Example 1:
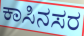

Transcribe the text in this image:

ಕಾಸಿನಸರ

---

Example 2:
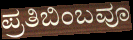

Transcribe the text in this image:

ಪ್ರತಿಬಿಂಬವೂ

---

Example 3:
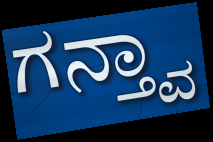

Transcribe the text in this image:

ಗನ್ತ್ವಾ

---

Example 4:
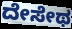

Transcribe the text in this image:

ದೇಸೇಥ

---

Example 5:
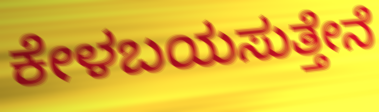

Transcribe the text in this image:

ಕೇಳಬಯಸುತ್ತೇನೆ